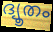
ദ്യൂതം